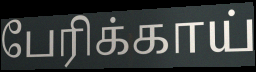
பேரிக்காய்